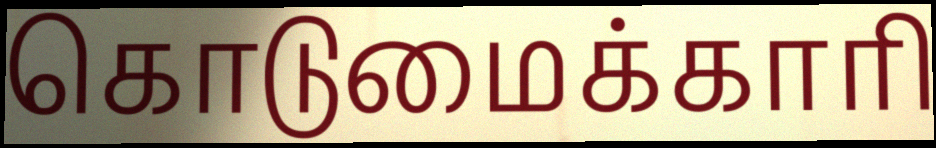
கொடுமைக்காரி